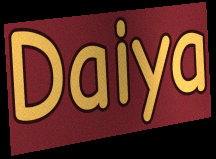
Daiya